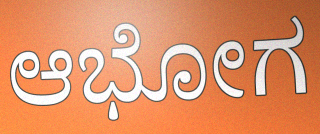
ಆಭೋಗ